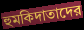
হুমকিদাতাদের